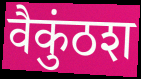
वैकुंठश